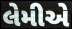
લેમીએ